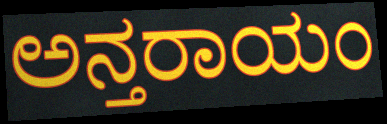
ಅನ್ತರಾಯಂ